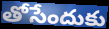
తోసేందుకు